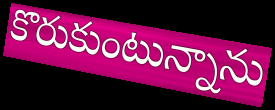
కొరుకుంటున్నాను